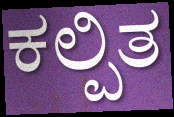
ಕಲ್ಪಿತ